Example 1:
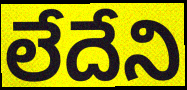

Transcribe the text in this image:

లేదేని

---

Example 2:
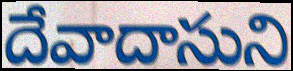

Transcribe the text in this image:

దేవాదాసుని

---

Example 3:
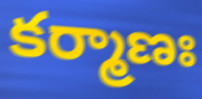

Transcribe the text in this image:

కర్మాణః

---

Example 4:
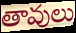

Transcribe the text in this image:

తావులు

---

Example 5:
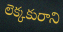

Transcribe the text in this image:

లెక్కకురాని